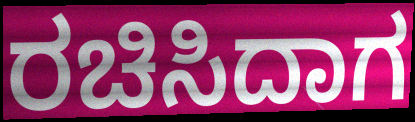
ರಚಿಸಿದಾಗ